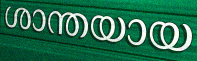
ശാന്തയായ